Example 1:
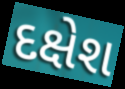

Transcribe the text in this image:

દક્ષેશ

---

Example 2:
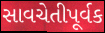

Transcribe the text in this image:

સાવચેતીપૂર્વક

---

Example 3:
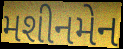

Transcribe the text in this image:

મશીનમેન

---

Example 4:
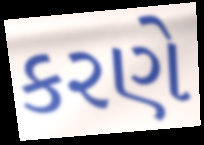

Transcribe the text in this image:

કરણે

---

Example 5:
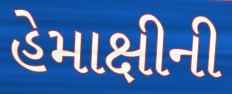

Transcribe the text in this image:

હેમાક્ષીની